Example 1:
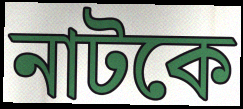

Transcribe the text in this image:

নাটকে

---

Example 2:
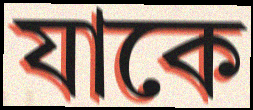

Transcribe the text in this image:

যাকে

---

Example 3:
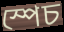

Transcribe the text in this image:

স্পেচ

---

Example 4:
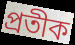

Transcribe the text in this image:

প্ৰতীক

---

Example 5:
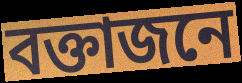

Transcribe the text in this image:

বক্তাজনে